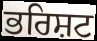
ਭਰਿਸ਼ਟ